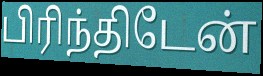
பிரிந்திடேன்